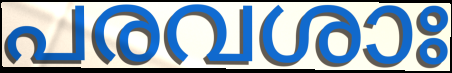
പരവശാഃ